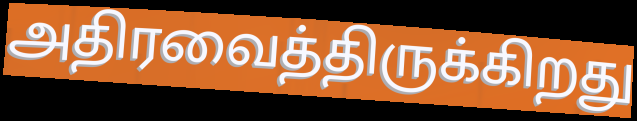
அதிரவைத்திருக்கிறது